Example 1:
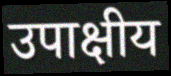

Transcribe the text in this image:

उपाक्षीय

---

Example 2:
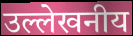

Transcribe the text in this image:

उल्लेखनीय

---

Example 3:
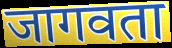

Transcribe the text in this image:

जागवता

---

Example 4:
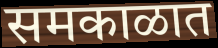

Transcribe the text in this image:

समकाळात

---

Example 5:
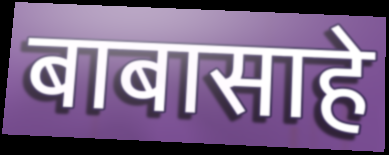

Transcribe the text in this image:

बाबासाहे